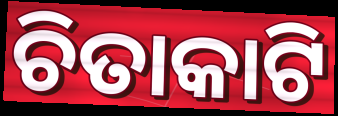
ଚିତାକାଟି